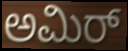
ಅಮಿರ್